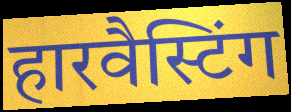
हारवैस्टिंग